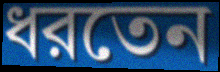
ধরতেন